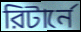
রিটার্নে